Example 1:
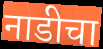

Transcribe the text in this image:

नाडीचा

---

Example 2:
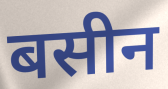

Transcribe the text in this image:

बसीन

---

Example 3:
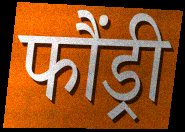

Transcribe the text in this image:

फौंड्री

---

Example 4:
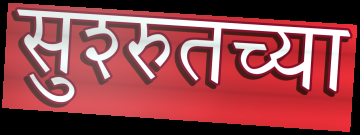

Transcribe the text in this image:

सुश्रुतच्या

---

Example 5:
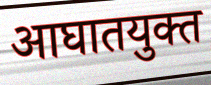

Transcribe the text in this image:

आघातयुक्त